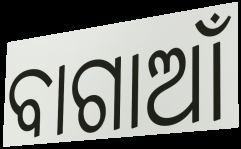
ବାଗାଆଁ